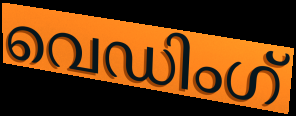
വെഡിംഗ്